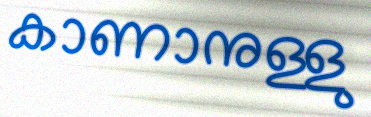
കാണാനുള്ളു